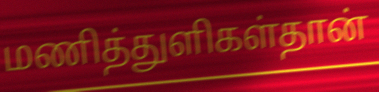
மணித்துளிகள்தான்